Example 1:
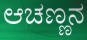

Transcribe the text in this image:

ಆಚಣ್ಣನ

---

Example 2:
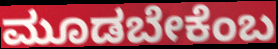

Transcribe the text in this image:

ಮೂಡಬೇಕೆಂಬ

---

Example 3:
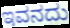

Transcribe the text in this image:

ಇವನದು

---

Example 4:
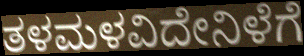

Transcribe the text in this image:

ತಳಮಳವಿದೇನಿಳೆಗೆ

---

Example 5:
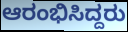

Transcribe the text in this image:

ಆರಂಭಿಸಿದ್ದರು